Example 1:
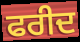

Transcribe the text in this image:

ਫਰੀਦ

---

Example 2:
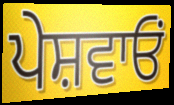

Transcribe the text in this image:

ਪੇਸ਼ਵਾਓਂ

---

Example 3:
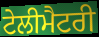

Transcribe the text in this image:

ਟੇਲੀਮੈਟਰੀ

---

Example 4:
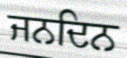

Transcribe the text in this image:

ਜਨਦਿਨ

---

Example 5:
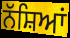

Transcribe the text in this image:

ਨੱਸ਼ਿਆਂ